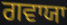
ਗਵਾਯਾ